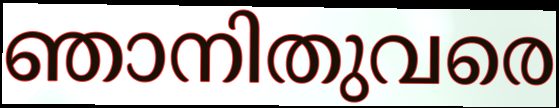
ഞാനിതുവരെ